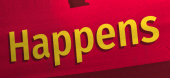
Happens